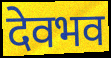
देवभव